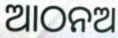
ଆଠନଅ